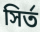
সির্ত